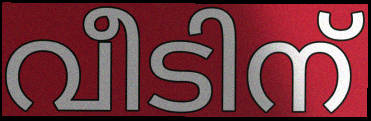
വീടിന്